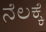
ನೆಲಕ್ಕೆ